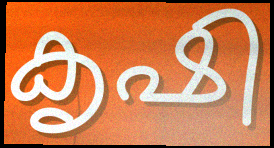
കൃഷി